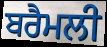
ਬਰੈਮਲੀ